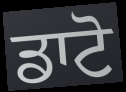
ਡਾਟੋ